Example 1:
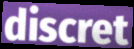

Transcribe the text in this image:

discret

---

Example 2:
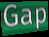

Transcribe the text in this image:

Gap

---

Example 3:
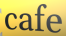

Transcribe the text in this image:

cafe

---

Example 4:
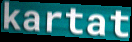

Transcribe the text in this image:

kartat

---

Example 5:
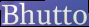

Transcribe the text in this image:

Bhutto